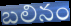
బలినం